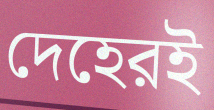
দেহেরই